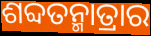
ଶବ୍ଦତନ୍ମାତ୍ରାର